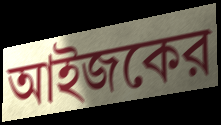
আইজকের